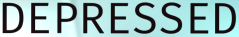
DEPRESSED